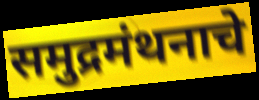
समुद्रमंथनाचे